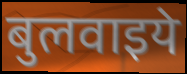
बुलवाइये